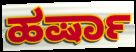
ಹರ್ಷಾ